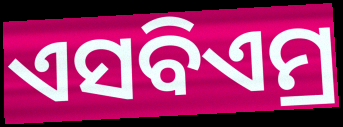
ଏସବିଏମ୍ର